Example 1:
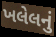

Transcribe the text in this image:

ખલેલનું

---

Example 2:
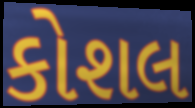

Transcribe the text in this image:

કોશલ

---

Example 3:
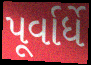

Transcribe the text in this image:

પૂર્વાર્ધે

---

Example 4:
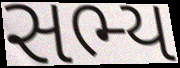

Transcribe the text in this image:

સભ્ય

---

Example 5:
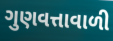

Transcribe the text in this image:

ગુણવત્તાવાળી